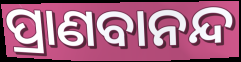
ପ୍ରାଣବାନନ୍ଦ